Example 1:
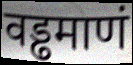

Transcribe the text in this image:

वड्ढमाणं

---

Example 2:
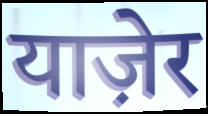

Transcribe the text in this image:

याज़ेर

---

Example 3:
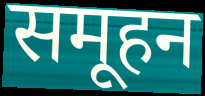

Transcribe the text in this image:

समूहन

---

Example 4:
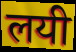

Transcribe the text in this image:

लयी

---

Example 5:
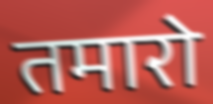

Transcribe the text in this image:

तमारो